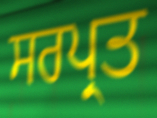
ਸਰਪ੍ਰਤ